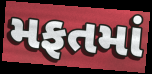
મફતમાં